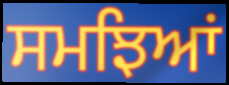
ਸਮਝਿਆਂ